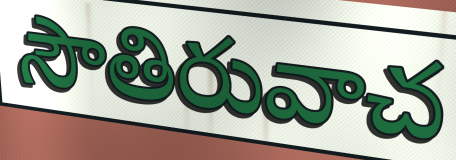
సౌతిరువాచ